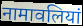
नामावलियां